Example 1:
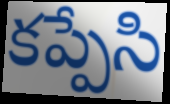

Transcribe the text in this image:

కప్పేసి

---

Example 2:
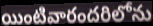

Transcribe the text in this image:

యింటివారందరిలోను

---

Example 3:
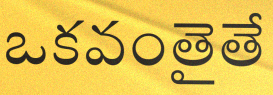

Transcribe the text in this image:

ఒకవంతైతే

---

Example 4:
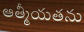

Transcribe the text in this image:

ఆత్మీయతను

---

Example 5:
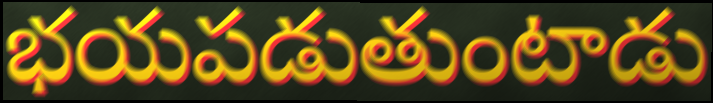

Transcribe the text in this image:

భయపడుతుంటాడు